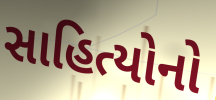
સાહિત્યોનો